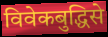
विवेकबुद्धिसे